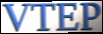
VTEP